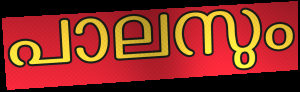
പാലസും